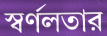
স্বর্ণলতার